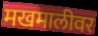
मखमालीवर